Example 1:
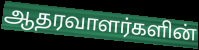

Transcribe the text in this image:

ஆதரவாளர்களின்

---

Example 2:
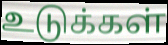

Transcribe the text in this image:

உடுக்கள்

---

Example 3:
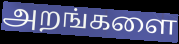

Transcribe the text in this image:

அறங்களை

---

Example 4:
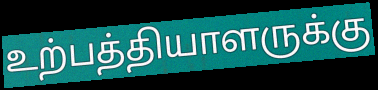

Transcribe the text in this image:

உற்பத்தியாளருக்கு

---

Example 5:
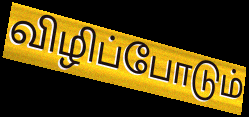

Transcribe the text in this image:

விழிப்போடும்